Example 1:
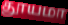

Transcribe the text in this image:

தூயமா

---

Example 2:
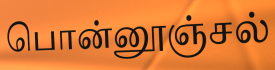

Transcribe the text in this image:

பொன்னூஞ்சல்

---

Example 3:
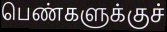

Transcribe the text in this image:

பெண்களுக்குச்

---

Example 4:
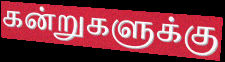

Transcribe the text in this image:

கன்றுகளுக்கு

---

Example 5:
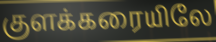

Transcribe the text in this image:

குளக்கரையிலே